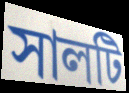
সালটি